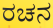
ರಚನ